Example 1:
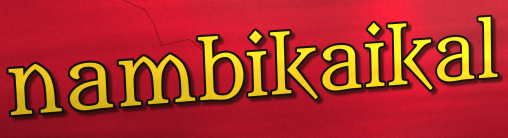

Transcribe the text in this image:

nambikaikal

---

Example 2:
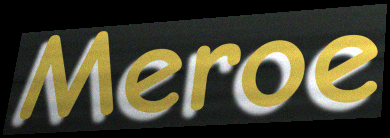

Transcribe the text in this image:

Meroe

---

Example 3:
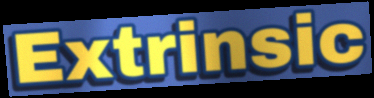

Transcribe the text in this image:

Extrinsic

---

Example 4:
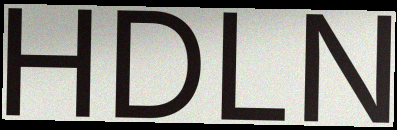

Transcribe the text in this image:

HDLN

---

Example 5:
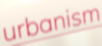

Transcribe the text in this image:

urbanism